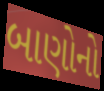
બાણોનો